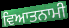
ਵਿਆਤਨਾਮੀ